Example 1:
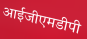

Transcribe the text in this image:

आईजीएमडीपी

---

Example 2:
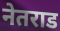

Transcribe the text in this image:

नेतराड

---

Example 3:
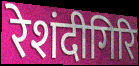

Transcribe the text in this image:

रेशंदीगिरि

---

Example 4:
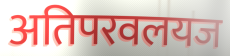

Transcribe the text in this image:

अतिपरवलयज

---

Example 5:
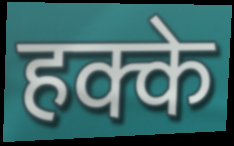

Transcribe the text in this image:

हक्के